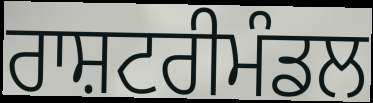
ਰਾਸ਼ਟਰੀਮੰਡਲ